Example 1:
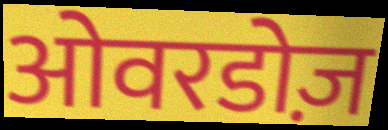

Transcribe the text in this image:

ओवरडोज़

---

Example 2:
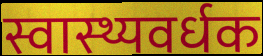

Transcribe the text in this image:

स्वास्थ्यवर्धक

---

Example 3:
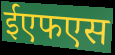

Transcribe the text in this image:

ईएफएस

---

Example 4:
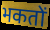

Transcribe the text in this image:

भकतों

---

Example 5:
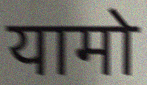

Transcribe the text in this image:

यामो